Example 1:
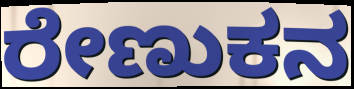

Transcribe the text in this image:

ರೇಣುಕನ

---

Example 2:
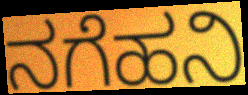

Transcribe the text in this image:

ನಗೆಹನಿ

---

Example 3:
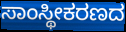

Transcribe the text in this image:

ಸಾಂಸ್ಥೀಕರಣದ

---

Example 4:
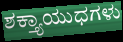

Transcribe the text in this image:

ಶಕ್ತ್ಯಾಯುಧಗಳು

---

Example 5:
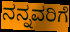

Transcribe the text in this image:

ನನ್ನವರಿಗೆ